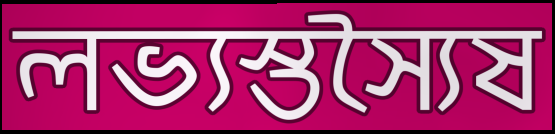
লভ্যস্তস্যৈষ